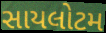
સાયલોટમ